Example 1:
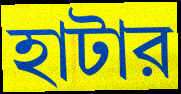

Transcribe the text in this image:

হাটার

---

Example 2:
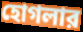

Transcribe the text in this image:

হোগলার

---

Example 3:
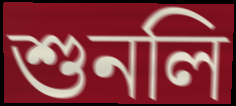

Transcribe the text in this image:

শুনলি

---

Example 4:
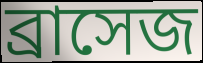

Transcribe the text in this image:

ব্রাসেজ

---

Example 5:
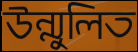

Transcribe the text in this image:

উন্মুলিত